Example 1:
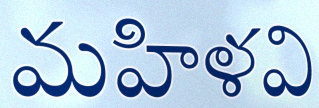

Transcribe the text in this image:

మహిళవి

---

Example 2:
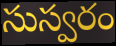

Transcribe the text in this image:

సుస్వరం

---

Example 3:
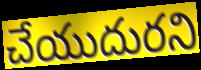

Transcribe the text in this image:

చేయుదురని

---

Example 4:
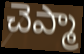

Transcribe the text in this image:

చెప్మా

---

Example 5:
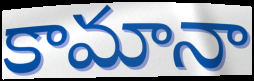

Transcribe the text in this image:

కామానా